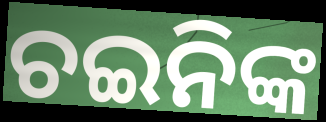
ଚଇନିଙ୍କ